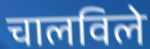
चालविले